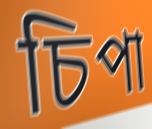
চিপা